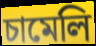
চামেলি